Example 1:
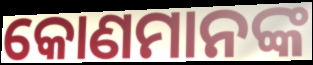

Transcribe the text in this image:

କୋଣମାନଙ୍କ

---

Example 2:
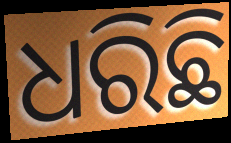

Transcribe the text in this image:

ଧରିଛି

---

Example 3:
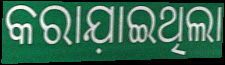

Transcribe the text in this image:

କରାଯ଼ାଇଥିଲା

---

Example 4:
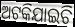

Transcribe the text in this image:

ଅଟକିଯାଇଚି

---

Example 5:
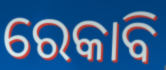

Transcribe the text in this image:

ରେକାବି